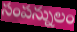
సంపన్నులం